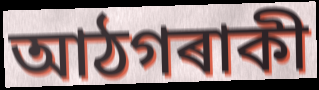
আঠগৰাকী